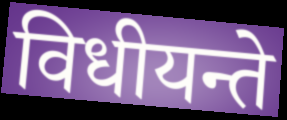
विधीयन्ते